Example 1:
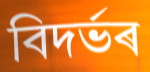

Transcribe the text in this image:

বিদৰ্ভৰ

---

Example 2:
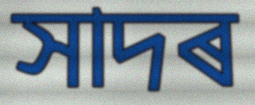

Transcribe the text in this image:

সাদৰ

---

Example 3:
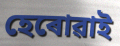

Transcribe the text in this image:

হেৰোৱাই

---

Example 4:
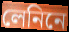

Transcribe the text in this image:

লেনিনে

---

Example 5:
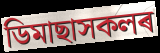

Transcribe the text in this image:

ডিমাছাসকলৰ